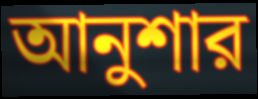
আনুশার